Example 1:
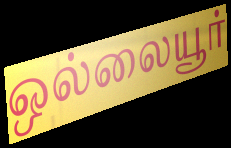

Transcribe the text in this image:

ஒல்லையூர்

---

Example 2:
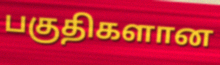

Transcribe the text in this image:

பகுதிகளான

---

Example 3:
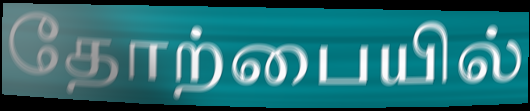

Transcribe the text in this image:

தோற்பையில்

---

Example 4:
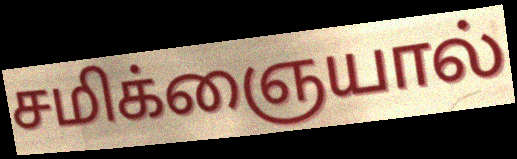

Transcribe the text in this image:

சமிக்ஞையால்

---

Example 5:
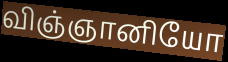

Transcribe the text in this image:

விஞ்ஞானியோ